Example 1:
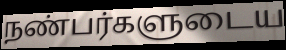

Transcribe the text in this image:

நண்பர்களுடைய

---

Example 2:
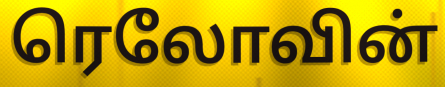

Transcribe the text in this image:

ரெலோவின்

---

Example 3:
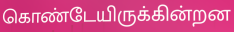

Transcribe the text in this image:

கொண்டேயிருக்கின்றன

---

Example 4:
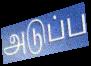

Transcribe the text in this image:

அடுப்ப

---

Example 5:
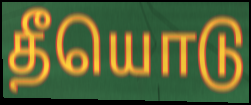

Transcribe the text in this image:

தீயொடு